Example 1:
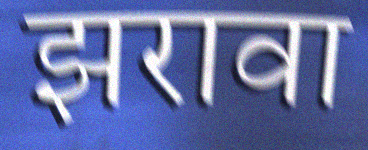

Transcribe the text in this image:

झरावा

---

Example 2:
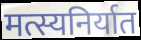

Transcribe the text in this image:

मत्स्यनिर्यात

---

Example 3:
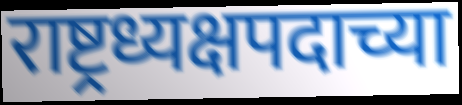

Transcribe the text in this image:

राष्ट्रध्यक्षपदाच्या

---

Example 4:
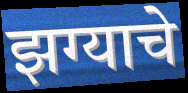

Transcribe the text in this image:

झग्याचे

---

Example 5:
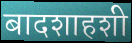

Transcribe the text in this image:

बादशाहशी